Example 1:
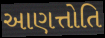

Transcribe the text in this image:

આણત્તોતિ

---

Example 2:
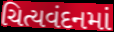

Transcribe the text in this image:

ચિત્યવંદનમાં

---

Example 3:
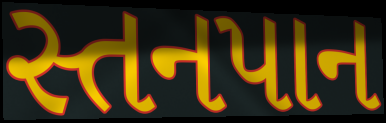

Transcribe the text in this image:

સ્તનપાન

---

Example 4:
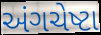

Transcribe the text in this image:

અંગચેષ્ટા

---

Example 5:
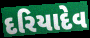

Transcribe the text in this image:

દરિયાદેવ